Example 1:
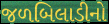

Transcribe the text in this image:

જળબિલાડીનો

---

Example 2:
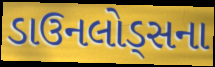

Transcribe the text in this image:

ડાઉનલોડ્સના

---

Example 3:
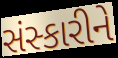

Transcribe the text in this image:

સંસ્કારીને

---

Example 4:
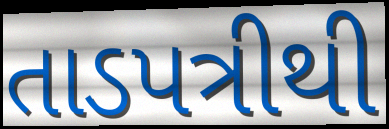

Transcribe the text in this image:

તાડપત્રીથી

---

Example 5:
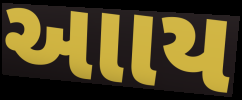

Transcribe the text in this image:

આાય